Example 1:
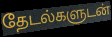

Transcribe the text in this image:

தேடல்களுடன்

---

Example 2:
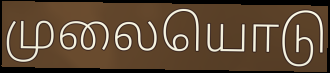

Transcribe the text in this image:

முலையொடு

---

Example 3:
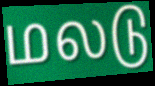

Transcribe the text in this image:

மலடு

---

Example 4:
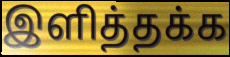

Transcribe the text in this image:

இளித்தக்க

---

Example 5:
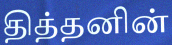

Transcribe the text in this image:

தித்தனின்